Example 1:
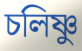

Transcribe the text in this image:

চলিষ্ণু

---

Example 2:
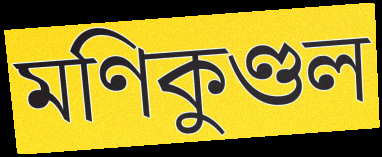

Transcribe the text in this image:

মণিকুণ্ডল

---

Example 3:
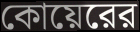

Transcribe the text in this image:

কোয়েরের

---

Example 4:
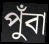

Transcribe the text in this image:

পুঁবা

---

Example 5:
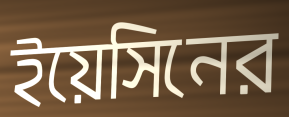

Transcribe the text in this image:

ইয়েসিনের